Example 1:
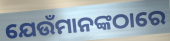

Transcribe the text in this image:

ଯେଉଁମାନଙ୍କଠାରେ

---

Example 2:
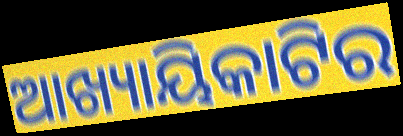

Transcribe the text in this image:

ଆଖ୍ୟାୟିକାଟିର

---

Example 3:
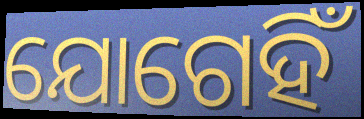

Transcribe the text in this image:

ଯୋଗେହିଁ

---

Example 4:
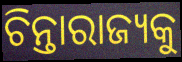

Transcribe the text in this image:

ଚିନ୍ତାରାଜ୍ୟକୁ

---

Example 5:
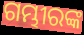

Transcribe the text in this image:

ଗମ୍ଭୀରଙ୍କ